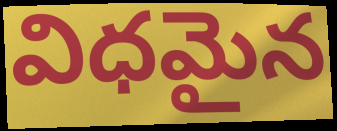
విధమైన